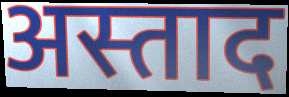
अस्ताद